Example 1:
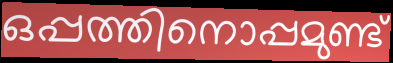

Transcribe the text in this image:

ഒപ്പത്തിനൊപ്പമുണ്ട്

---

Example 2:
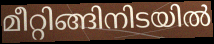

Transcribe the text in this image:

മീറ്റിങ്ങിനിടയിൽ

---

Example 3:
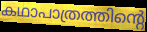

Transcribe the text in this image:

കഥാപാത്രത്തിന്റെ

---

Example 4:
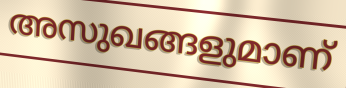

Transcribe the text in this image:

അസുഖങ്ങളുമാണ്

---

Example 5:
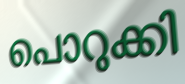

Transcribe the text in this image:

പൊറുക്കി